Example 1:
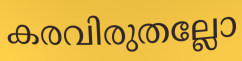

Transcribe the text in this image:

കരവിരുതല്ലോ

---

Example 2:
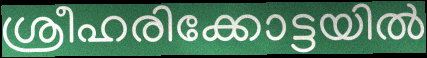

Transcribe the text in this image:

ശ്രീഹരിക്കോട്ടയിൽ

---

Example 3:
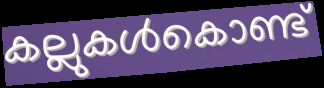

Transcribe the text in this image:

കല്ലുകൾകൊണ്ട്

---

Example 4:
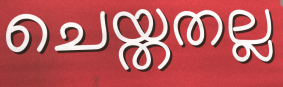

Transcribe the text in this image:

ചെയ്തതല്ല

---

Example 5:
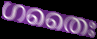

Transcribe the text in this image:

ഗതൈഃ